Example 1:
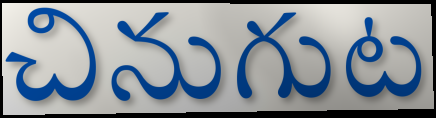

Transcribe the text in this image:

చినుగుట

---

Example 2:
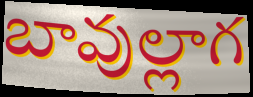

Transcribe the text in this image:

బావుల్లాగ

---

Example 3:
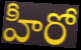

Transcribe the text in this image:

హీరో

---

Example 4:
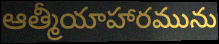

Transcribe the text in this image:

ఆత్మీయాహారమును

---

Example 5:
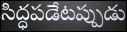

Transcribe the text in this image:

సిద్ధపడేటప్పుడు